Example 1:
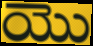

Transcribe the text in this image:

యొ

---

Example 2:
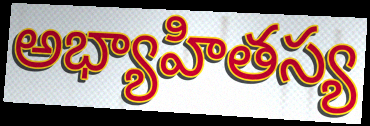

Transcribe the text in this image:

అభ్యాహితస్య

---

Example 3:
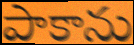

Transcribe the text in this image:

పాకాను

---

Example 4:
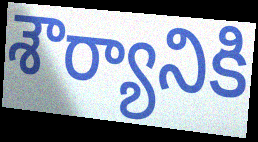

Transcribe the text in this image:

శౌర్యానికి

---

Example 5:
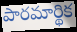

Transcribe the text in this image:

పారమార్థిక